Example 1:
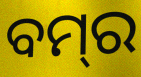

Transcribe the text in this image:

ବମ୍‌ର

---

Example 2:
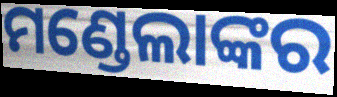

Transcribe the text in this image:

ମଣ୍ଡେଲାଙ୍କର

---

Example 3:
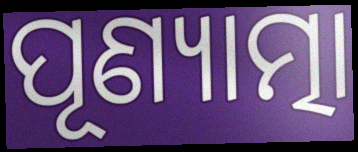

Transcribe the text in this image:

ପୂଣ୍ୟାତ୍ମା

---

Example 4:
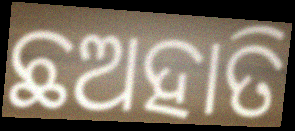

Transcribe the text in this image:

ଛଅହାତି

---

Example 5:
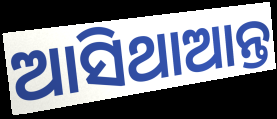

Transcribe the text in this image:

ଆସିଥାଆନ୍ତ